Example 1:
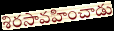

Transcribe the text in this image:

శిరసావహించాడు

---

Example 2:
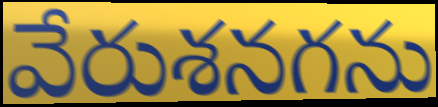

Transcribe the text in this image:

వేరుశనగను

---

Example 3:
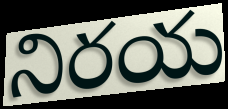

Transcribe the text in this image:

నిరయ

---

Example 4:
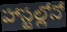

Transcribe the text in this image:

హాస్టల్లోనో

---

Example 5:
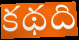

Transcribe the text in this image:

కథది